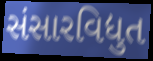
સંસારવિદ્યુત